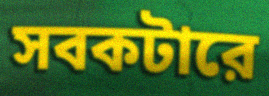
সবকটারে